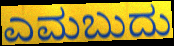
ಎಮಬುದು